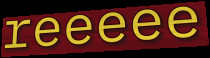
reeeee